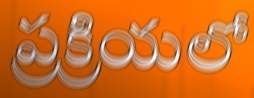
ప్రక్రియలో